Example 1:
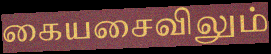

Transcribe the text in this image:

கையசைவிலும்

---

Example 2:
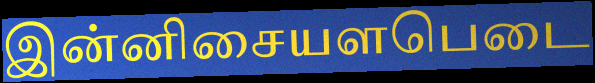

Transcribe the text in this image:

இன்னிசையளபெடை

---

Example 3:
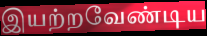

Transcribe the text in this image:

இயற்றவேண்டிய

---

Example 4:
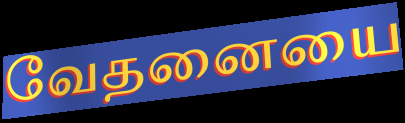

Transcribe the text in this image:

வேதனையை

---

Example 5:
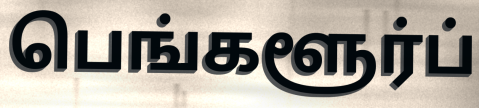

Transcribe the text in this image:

பெங்களூர்ப்